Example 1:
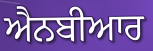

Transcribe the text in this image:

ਐਨਬੀਆਰ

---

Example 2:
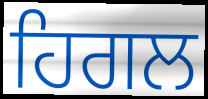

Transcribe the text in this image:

ਹਿਗਲ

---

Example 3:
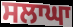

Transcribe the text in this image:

ਸਲਾਘਾ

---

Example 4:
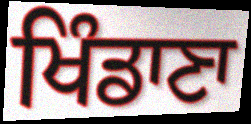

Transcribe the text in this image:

ਖਿੰਡਾਣਾ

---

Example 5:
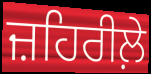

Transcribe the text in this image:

ਜ਼ਹਿਰੀਲ਼ੇ